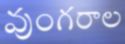
వుంగరాల